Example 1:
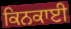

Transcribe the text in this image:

ਕਿਨਕਾਈ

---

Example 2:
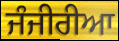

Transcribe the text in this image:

ਜੰਜੀਰੀਆ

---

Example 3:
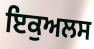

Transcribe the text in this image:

ਇਕੁਅਲਸ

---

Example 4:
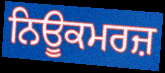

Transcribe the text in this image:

ਨਿਊਕਮਰਜ਼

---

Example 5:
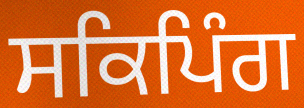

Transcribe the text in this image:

ਸਕਿਪਿੰਗ